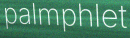
palmphlet